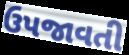
ઉપજાવતી